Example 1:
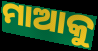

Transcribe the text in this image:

ମାଆକୁ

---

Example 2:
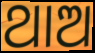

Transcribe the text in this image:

ଥାଅ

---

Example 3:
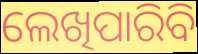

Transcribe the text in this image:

ଲେଖିପାରିବି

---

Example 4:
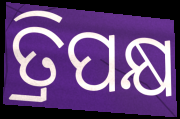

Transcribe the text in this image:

ତ୍ରିପକ୍ଷ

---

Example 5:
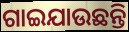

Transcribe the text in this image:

ଗାଇଯାଉଛନ୍ତି